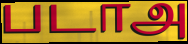
படாஅ